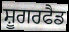
ਸ਼ੂਗਰਫੈਡ